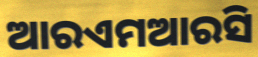
ଆରଏମଆରସି